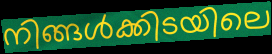
നിങ്ങൾക്കിടയിലെ